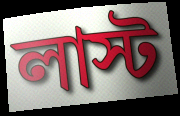
লাস্ট